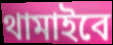
থামাইবে